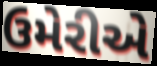
ઉમેરીએ